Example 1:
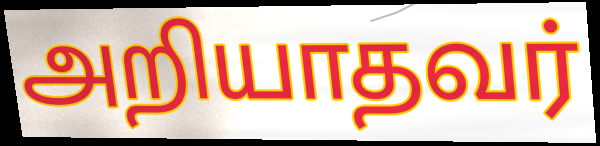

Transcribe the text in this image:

அறியாதவர்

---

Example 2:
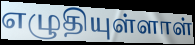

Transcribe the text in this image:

எழுதியுள்ளாள்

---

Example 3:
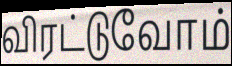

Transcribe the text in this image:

விரட்டுவோம்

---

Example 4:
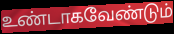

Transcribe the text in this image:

உண்டாகவேண்டும்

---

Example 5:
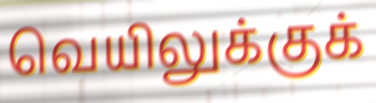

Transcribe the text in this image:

வெயிலுக்குக்